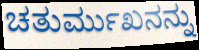
ಚತುರ್ಮುಖನನ್ನು